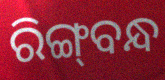
ରିଙ୍ଗ୍‌ବନ୍ଧ